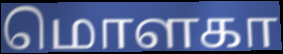
மொளகா